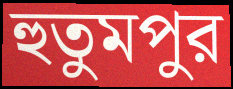
হুতুমপুর